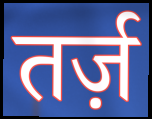
तर्ज़